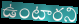
ఉంటారని